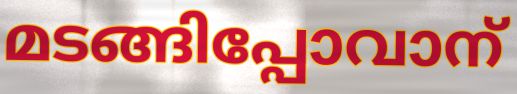
മടങ്ങിപ്പോവാന്